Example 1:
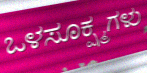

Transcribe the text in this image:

ಒಳಸೂಕ್ಷ್ಮಗಳು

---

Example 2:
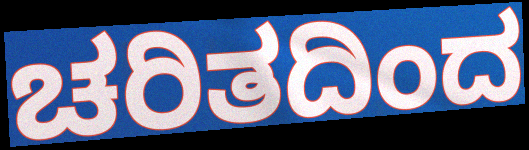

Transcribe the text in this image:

ಚರಿತದಿಂದ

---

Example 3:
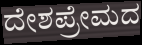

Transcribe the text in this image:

ದೇಶಪ್ರೇಮದ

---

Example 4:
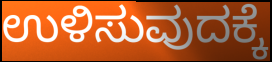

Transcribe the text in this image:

ಉಳಿಸುವುದಕ್ಕೆ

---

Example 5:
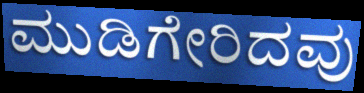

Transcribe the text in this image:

ಮುಡಿಗೇರಿದವು